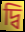
দ্বি